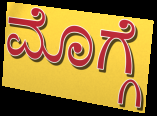
ಮೊಗ್ಗೆ